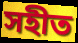
সহীত